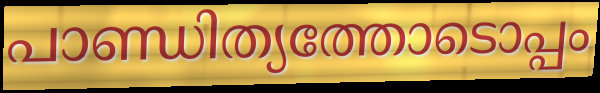
പാണ്ഡിത്യത്തോടൊപ്പം